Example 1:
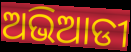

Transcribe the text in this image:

ଅଭିଆଡୀ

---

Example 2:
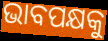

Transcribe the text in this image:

ଭାବପକ୍ଷକୁ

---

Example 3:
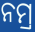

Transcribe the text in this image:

ନମ୍ର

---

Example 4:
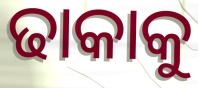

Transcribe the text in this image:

ଢାକାକୁ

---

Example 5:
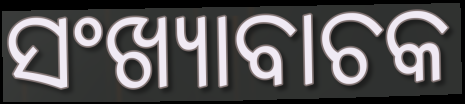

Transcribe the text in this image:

ସଂଖ୍ୟାବାଚକ